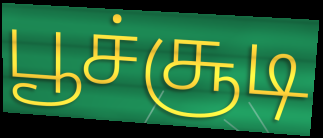
பூச்சூடி